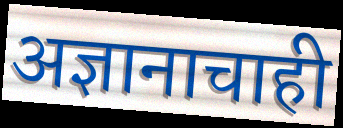
अज्ञानाचाही